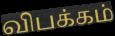
விபக்கம்